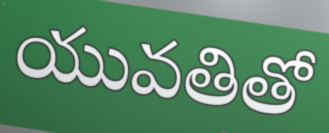
యువతితో